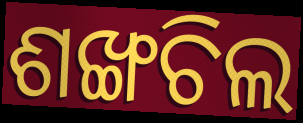
ଶଙ୍ଖଚିଲ